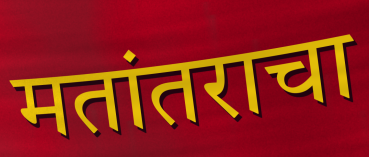
मतांतराचा